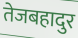
तेजबहादुर